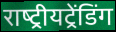
राष्ट्रीयट्रेंडिंग